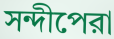
সন্দীপেরা